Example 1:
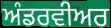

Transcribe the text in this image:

ਅੰਡਰਵੀਅਰ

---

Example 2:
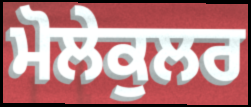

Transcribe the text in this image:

ਮੋਲੇਕੁਲਰ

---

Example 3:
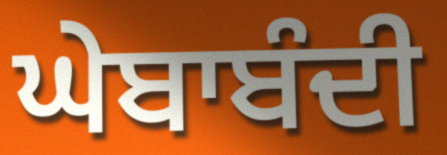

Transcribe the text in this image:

ਘੇਬਾਬੰਦੀ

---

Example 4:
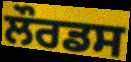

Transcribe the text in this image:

ਲੌਰਡਸ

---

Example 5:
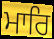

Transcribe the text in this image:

ਮਾਰਿ